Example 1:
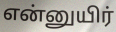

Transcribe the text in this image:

என்னுயிர்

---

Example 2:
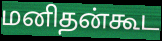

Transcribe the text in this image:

மனிதன்கூட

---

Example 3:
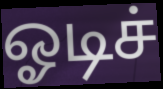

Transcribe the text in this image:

ஓடிச்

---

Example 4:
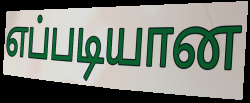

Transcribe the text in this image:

எப்படியான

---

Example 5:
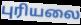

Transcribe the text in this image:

புரியலை